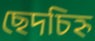
ছেদচিহ্ন